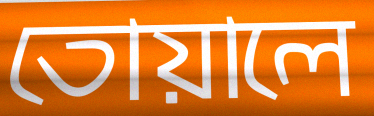
তোয়ালে